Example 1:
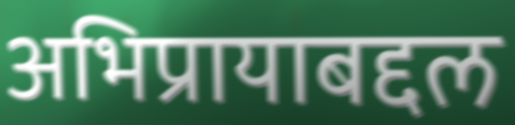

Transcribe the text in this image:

अभिप्रायाबद्दल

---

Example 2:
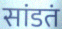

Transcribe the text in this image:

सांडतं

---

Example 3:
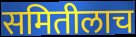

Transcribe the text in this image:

समितीलाच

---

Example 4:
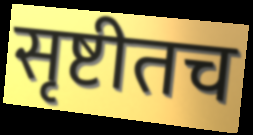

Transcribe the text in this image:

सृष्टीतच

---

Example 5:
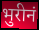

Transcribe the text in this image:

भुरीनं